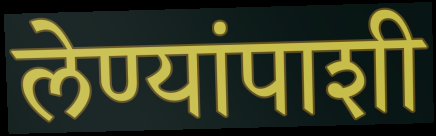
लेण्यांपाशी